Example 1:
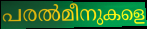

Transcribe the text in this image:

പരൽമീനുകളെ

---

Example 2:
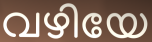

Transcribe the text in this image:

വഴിയേ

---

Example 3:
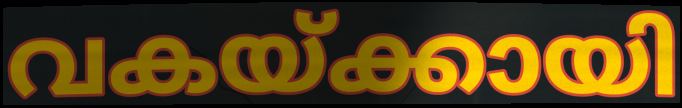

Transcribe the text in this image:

വകയ്ക്കായി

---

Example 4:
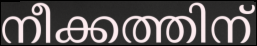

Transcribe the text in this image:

നീക്കത്തിന്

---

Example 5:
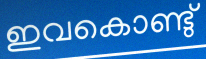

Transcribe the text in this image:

ഇവകൊണ്ടു്